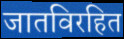
जातविरहित